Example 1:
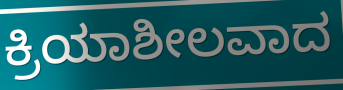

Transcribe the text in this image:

ಕ್ರಿಯಾಶೀಲವಾದ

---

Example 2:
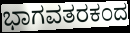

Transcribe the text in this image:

ಭಾಗವತರಕಂದ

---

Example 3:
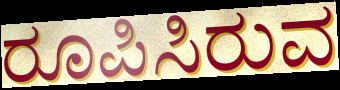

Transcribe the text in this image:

ರೂಪಿಸಿರುವ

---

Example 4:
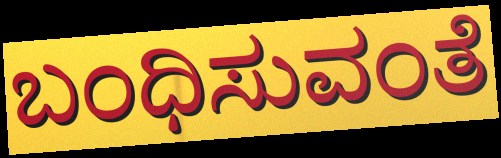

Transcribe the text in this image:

ಬಂಧಿಸುವಂತೆ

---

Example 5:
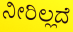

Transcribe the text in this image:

ನೀರಿಲ್ಲದೆ